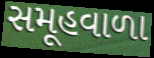
સમૂહવાળા